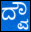
ದ್ವೌ